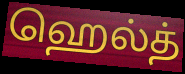
ஹெல்த்